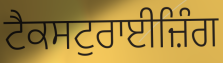
ਟੈਕਸਟੁਰਾਈਜ਼ਿੰਗ